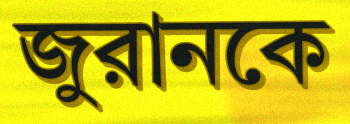
জুরানকে